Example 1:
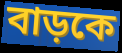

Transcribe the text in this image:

বাড়কে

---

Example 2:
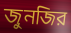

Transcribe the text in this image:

জুনজির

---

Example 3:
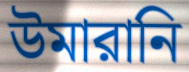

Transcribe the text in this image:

উমারানি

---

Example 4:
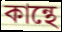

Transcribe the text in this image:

কান্থে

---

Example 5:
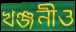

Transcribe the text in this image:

খঞ্জনীও